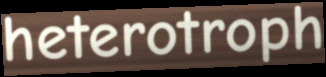
heterotroph